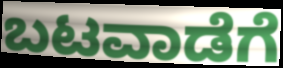
ಬಟವಾಡೆಗೆ